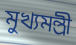
মুখ্যমন্ত্রী